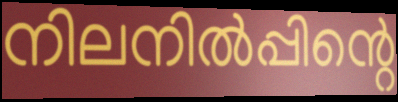
നിലനിൽപ്പിന്റെ